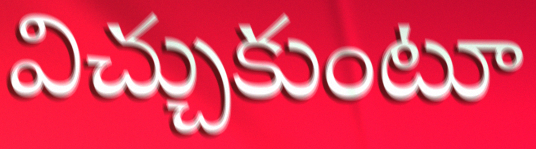
విచ్చుకుంటూ